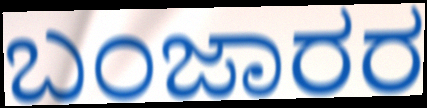
ಬಂಜಾರರ